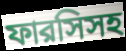
ফারসিসহ